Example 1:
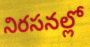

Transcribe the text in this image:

నిరసనల్లో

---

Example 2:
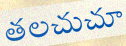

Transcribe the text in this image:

తలచుచూ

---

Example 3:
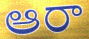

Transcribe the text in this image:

ఆరా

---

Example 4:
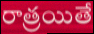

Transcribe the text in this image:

రాత్రయితే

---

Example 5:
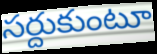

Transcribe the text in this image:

సర్దుకుంటూ